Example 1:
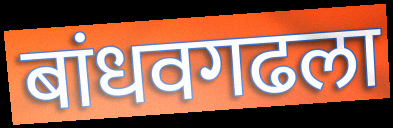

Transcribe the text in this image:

बांधवगढला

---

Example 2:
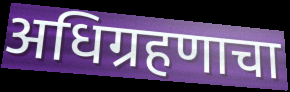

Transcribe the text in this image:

अधिग्रहणाचा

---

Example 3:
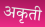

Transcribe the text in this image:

अकृती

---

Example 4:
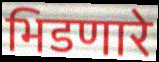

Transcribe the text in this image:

भिडणारे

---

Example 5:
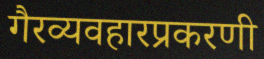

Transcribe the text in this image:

गैरव्यवहारप्रकरणी